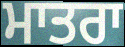
ਮਾਤਰਾ